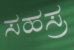
ಸಹಸ್ರ